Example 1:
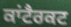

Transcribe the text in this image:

ਕਾਂਟੈਰਕਟ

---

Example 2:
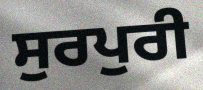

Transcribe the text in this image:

ਸੁਰਪੁਰੀ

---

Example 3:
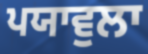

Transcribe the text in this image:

ਪਯਾਵੁਲਾ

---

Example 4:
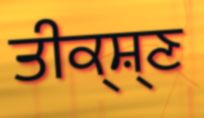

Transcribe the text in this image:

ਤੀਕ੍ਸ਼੍ਣ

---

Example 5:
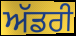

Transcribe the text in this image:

ਅੱਡਰੀ